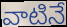
వాటినే